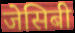
जेसिबी